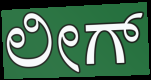
ಲೀಗ್